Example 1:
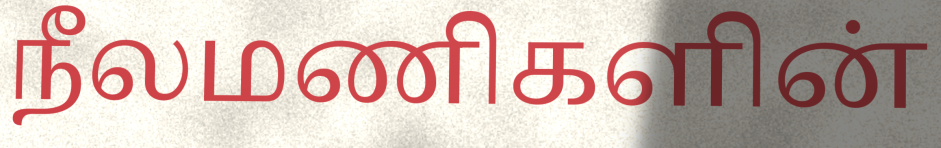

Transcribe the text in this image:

நீலமணிகளின்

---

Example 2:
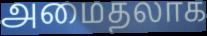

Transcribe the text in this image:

அமைதலாக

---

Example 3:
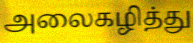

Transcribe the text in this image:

அலைகழித்து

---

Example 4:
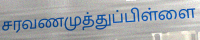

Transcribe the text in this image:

சரவணமுத்துப்பிள்ளை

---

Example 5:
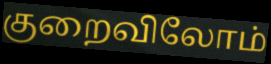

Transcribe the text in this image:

குறைவிலோம்